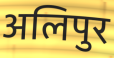
अलिपुर